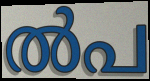
ൽപ